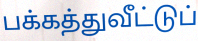
பக்கத்துவீட்டுப்